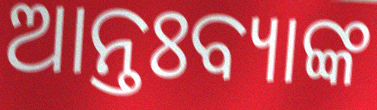
ଆନ୍ତଃବ୍ୟାଙ୍କ